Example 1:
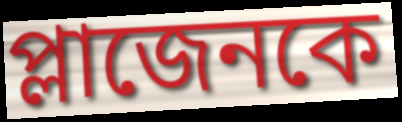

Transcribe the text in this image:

প্লাজেনকে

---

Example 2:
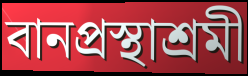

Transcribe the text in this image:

বানপ্রস্থাশ্রমী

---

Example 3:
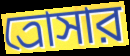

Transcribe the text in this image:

ত্রোসার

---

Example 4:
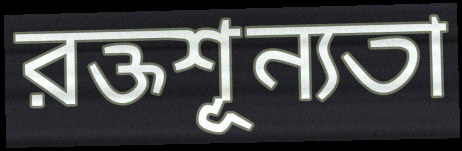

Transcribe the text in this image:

রক্তশূন্যতা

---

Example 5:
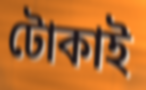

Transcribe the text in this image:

টোকাই